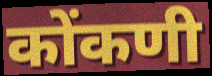
कोंकणी